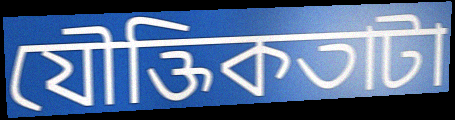
যৌক্তিকতাটা